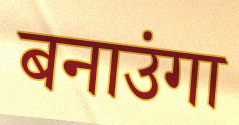
बनाउंगा